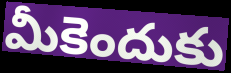
మీకెందుకు